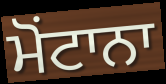
ਮੋਂਟਾਨਾ